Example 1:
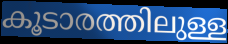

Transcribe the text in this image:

കൂടാരത്തിലുള്ള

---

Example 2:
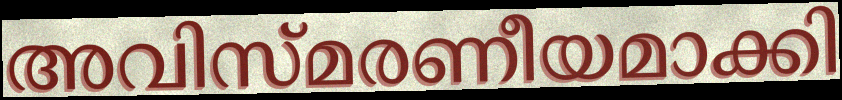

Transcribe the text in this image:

അവിസ്മരണീയമാക്കി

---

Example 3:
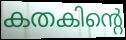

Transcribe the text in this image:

കതകിന്റെ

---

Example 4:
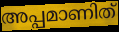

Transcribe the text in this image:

അപ്പമാണിത്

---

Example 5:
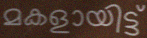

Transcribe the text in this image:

മകളായിട്ട്